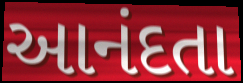
આનંદતા